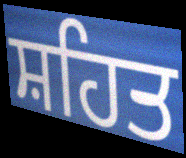
ਸ਼ਹਿਤ